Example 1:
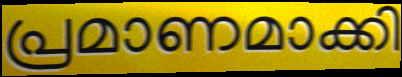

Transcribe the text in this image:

പ്രമാണമാക്കി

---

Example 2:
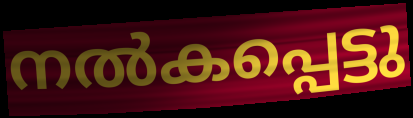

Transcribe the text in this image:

നൽകപ്പെട്ടു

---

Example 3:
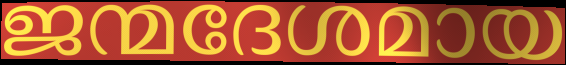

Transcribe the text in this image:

ജന്മദേശമായ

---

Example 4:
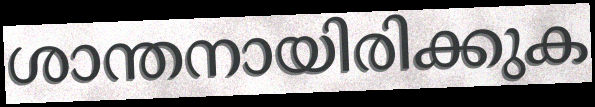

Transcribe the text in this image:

ശാന്തനായിരിക്കുക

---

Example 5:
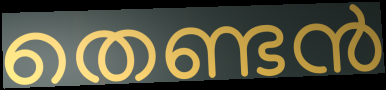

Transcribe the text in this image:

തെണ്ടൻ